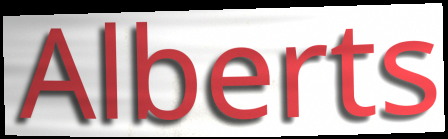
Alberts